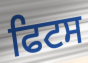
ਫਿਟਸ